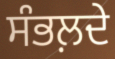
ਸੰਭਲ਼ਦੇ